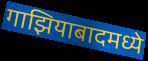
गाझियाबादमध्ये